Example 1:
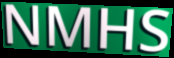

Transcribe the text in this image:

NMHS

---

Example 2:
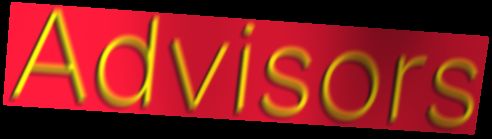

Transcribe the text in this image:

Advisors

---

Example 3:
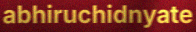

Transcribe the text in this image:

abhiruchidnyate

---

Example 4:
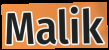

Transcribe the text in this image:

Malik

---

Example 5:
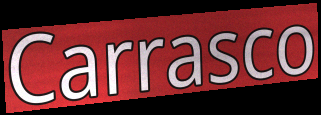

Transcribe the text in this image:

Carrasco